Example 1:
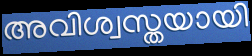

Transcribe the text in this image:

അവിശ്വസ്തയായി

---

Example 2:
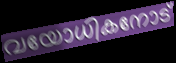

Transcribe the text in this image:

വയോധികനോട്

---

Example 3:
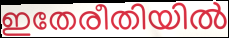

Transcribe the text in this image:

ഇതേരീതിയിൽ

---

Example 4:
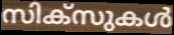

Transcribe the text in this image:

സിക്സുകൾ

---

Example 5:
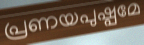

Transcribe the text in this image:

പ്രണയപുഷ്പമേ